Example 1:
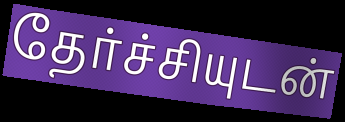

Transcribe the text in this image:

தேர்ச்சியுடன்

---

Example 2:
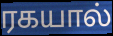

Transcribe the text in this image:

ரகயால்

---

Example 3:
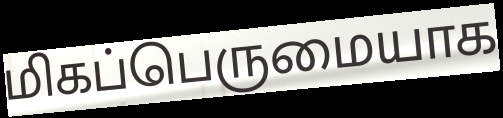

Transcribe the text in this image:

மிகப்பெருமையாக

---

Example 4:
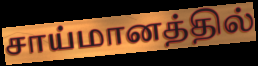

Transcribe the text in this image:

சாய்மானத்தில்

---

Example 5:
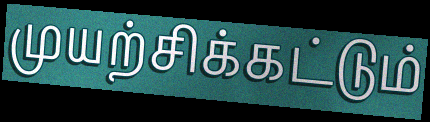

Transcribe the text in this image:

முயற்சிக்கட்டும்